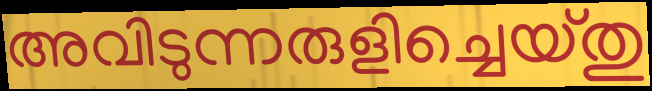
അവിടുന്നരുളിച്ചെയ്തു